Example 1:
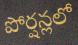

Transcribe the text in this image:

పోర్షన్లలో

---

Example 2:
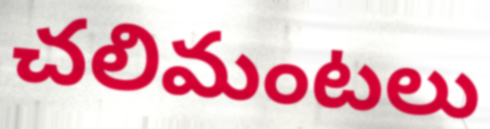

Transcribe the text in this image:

చలిమంటలు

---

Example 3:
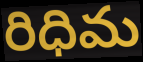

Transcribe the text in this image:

రిధిమ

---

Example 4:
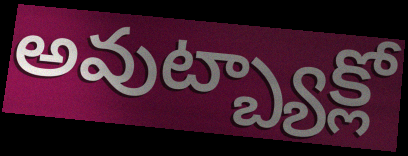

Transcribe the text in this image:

అవుట్బ్యాక్లో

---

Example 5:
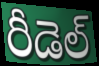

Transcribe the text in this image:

రీడెల్